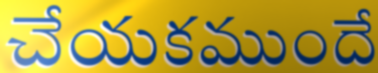
చేయకముందే